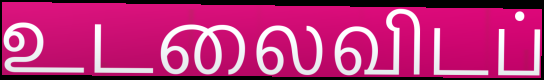
உடலைவிடப்